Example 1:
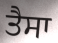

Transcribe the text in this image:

ਤੈਸਾ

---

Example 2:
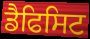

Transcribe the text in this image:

ਡੈਫਿਸਿਟ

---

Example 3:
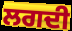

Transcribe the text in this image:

ਲਗਦੀ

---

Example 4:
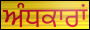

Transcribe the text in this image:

ਅੰਧਕਾਰਾਂ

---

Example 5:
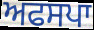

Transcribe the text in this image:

ਅਫਸਪਾ